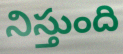
నిస్తుంది